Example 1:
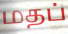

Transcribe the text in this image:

மதப்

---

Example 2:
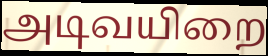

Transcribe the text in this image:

அடிவயிறை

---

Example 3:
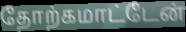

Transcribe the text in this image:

தோற்கமாட்டேன்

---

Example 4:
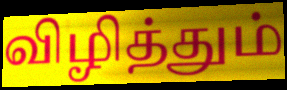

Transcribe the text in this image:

விழித்தும்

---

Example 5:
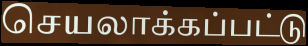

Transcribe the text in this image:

செயலாக்கப்பட்டு